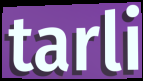
tarli